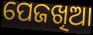
ପେଜଖିଆ